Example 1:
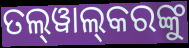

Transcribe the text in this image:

ତଲ୍‌ୱାଲ୍‌କରଙ୍କୁ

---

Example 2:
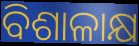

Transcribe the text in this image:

ବିଶାଳାକ୍ଷ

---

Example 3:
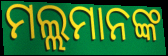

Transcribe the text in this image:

ମଲ୍ଲମାନଙ୍କ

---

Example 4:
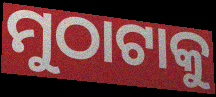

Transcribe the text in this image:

ମୁଠାଟାକୁ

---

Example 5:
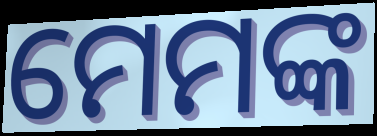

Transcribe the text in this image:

ମେମଙ୍କ